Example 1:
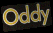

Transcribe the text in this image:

Oddy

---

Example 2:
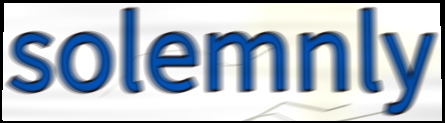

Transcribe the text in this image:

solemnly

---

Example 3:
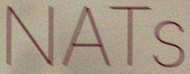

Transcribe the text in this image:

NATs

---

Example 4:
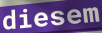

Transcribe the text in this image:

diesem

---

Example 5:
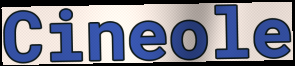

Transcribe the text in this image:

Cineole